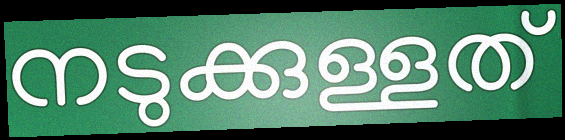
നടുക്കുള്ളത്